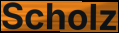
Scholz